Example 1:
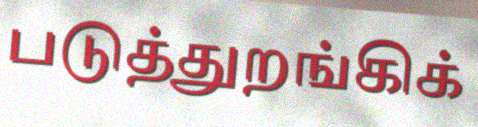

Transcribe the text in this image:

படுத்துறங்கிக்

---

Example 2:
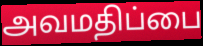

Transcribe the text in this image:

அவமதிப்பை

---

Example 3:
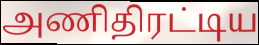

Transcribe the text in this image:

அணிதிரட்டிய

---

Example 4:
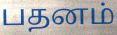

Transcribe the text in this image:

பதனம்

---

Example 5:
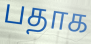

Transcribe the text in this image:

பதாக